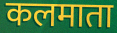
कलमाता